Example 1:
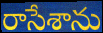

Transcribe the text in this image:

రాసేశాను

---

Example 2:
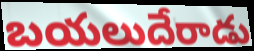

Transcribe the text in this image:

బయలుదేరాడు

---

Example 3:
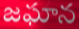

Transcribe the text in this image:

జఘాన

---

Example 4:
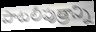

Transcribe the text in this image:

పాటలీపుత్రాన్ని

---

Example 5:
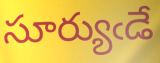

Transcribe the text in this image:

సూర్యుఁడే